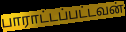
பாராட்டப்பட்டவன்